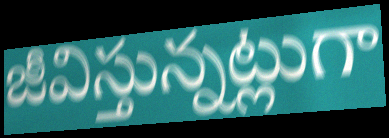
జీవిస్తున్నట్లుగా